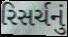
રિસર્ચનું